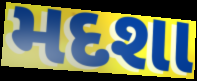
મદશા